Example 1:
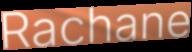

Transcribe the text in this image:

Rachane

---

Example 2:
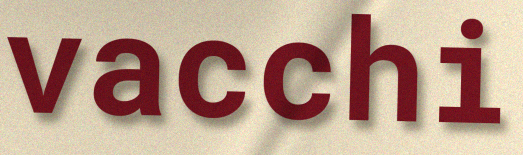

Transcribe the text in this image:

vacchi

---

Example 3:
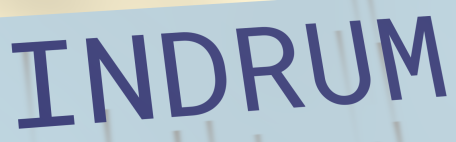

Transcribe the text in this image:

INDRUM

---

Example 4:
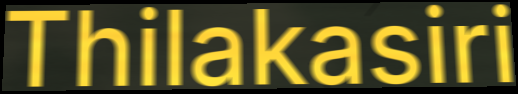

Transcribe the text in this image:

Thilakasiri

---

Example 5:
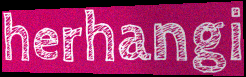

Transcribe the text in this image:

herhangi